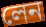
লেন